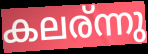
കലര്ന്നു